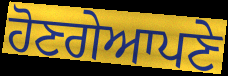
ਹੋਣਗੇਆਪਣੇ